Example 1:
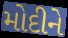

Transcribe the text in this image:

મોદીને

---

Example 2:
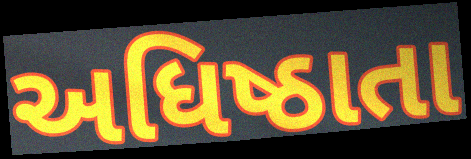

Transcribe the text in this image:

અધિષ્ઠાતા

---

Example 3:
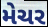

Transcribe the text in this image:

મેચર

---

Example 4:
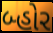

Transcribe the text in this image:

બ્હોર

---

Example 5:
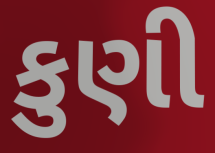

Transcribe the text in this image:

કુણી